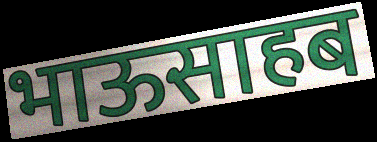
भाऊसाहब